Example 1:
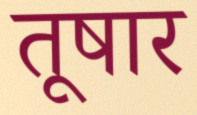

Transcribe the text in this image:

तूषार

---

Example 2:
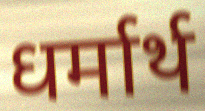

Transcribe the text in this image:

धर्मार्थ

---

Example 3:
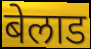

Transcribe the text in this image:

बेलाड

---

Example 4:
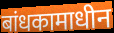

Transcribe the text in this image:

बांधकामाधीन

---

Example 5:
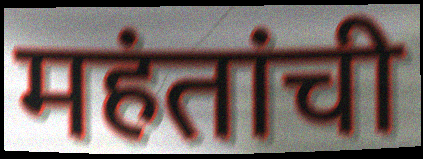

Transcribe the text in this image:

महंतांची